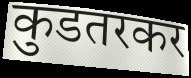
कुडतरकर